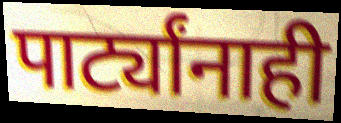
पार्ट्यांनाही